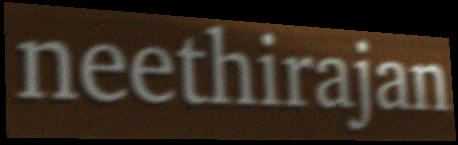
neethirajan